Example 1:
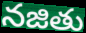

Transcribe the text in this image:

నజితు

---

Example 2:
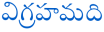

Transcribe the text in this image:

విగ్రహమది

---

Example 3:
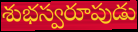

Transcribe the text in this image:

శుభస్వరూపుడు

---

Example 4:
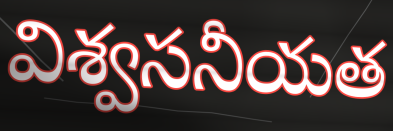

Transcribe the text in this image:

విశ్వసనీయత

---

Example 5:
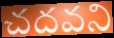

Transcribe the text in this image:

చదవని